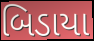
બિડાયા